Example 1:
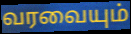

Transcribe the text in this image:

வரவையும்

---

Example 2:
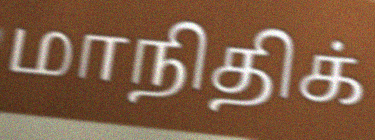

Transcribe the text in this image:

மாநிதிக்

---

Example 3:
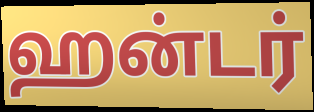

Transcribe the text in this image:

ஹன்டர்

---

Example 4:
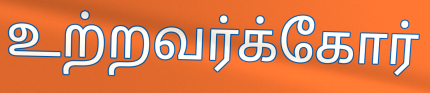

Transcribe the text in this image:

உற்றவர்க்கோர்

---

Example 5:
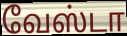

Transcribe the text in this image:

வேஸ்டா